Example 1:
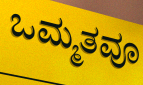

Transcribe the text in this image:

ಒಮ್ಮತವೂ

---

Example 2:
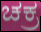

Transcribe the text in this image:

ಚಕ್ರ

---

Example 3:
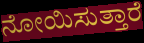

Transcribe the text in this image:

ನೋಯಿಸುತ್ತಾರೆ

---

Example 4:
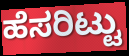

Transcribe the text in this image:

ಹೆಸರಿಟ್ಟು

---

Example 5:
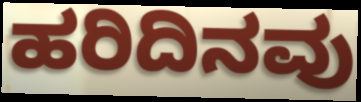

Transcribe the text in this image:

ಹರಿದಿನವು